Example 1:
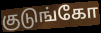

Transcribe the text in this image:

குடுங்கோ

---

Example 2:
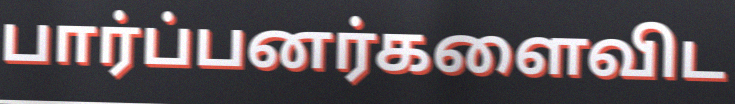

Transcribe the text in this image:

பார்ப்பனர்களைவிட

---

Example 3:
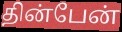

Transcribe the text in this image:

தின்பேன்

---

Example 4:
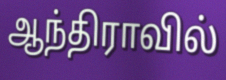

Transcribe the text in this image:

ஆந்திராவில்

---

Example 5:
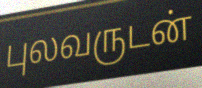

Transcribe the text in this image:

புலவருடன்